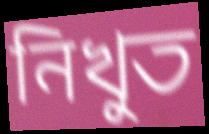
নিখুত